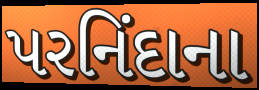
પરનિંદાના